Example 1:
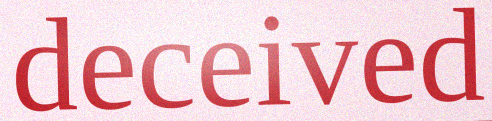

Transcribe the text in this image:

deceived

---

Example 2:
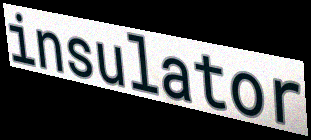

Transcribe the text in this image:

insulator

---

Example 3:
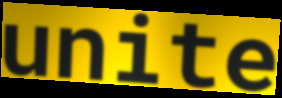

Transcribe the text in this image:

unite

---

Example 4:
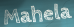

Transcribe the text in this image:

Mahela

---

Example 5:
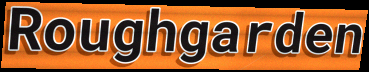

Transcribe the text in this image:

Roughgarden